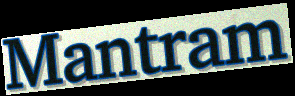
Mantram